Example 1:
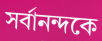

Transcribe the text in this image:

সর্বানন্দকে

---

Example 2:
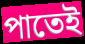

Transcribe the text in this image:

পাতেই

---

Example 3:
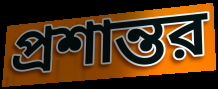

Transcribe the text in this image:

প্রশান্তর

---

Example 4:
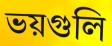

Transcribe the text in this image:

ভয়গুলি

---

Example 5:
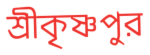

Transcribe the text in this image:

শ্রীকৃষ্ণপুর